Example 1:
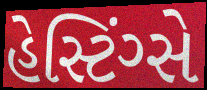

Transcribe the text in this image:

હેસ્ટિંગ્સે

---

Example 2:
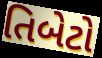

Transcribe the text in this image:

તિબેટો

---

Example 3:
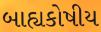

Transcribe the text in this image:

બાહ્યકોષીય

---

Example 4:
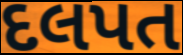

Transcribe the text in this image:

દલપત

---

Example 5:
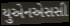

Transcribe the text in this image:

યુએનએસસી